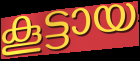
കൂട്ടായ